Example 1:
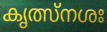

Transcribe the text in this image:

കൃത്സ്നശഃ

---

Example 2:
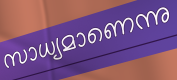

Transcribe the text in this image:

സാധ്യമാണെന്നു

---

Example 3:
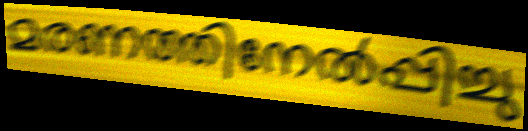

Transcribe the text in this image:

മരണത്തിനേൽപ്പിച്ചു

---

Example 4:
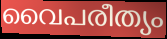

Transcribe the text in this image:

വൈപരീത്യം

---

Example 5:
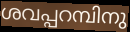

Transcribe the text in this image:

ശവപ്പറമ്പിനു